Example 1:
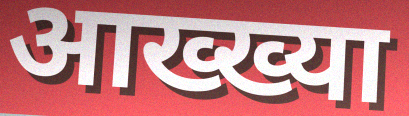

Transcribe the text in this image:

आख्ख्या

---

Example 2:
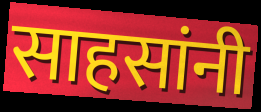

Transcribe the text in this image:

साहसांनी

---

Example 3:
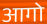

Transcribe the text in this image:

आगो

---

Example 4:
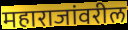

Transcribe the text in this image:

महाराजांवरील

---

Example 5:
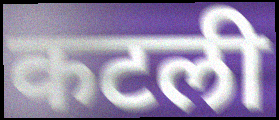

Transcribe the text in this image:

कटली